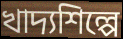
খাদ্যশিল্পে